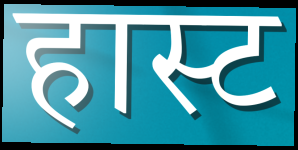
हास्ट